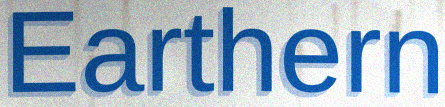
Earthern